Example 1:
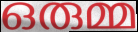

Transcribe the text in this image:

ഒരുമ്മ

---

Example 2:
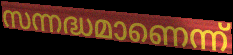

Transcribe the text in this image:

സന്നദ്ധമാണെന്ന്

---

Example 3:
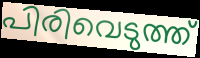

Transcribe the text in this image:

പിരിവെടുത്ത്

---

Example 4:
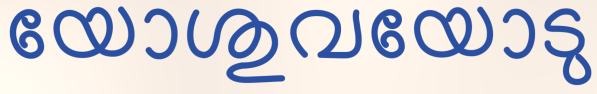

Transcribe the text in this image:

യോശുവയോടു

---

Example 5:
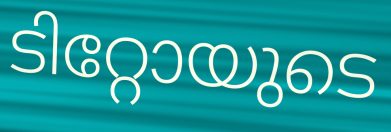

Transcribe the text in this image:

ടിറ്റോയുടെ